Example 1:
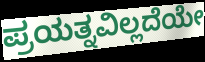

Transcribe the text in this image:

ಪ್ರಯತ್ನವಿಲ್ಲದೆಯೇ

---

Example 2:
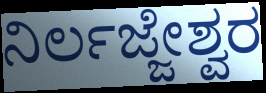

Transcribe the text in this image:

ನಿರ್ಲಜ್ಜೇಶ್ವರ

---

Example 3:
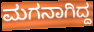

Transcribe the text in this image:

ಮಗನಾಗಿದ್ದ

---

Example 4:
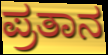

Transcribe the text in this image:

ಪ್ರತಾನ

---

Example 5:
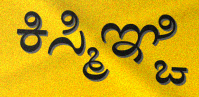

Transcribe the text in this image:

ಕಿಸ್ಮಿಞ್ಚಿ